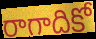
రాగాదికో